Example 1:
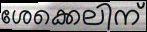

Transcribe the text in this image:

ശേക്കെലിന്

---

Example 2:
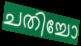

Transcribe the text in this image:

ചതിച്ചോ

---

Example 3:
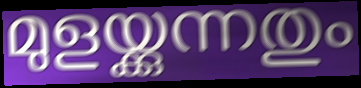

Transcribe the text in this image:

മുളയ്ക്കുന്നതും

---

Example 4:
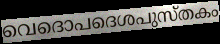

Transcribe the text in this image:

വെദൊപദെശപുസ്തകം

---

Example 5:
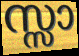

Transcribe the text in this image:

സ്സാ